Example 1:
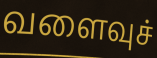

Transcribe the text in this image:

வளைவுச்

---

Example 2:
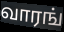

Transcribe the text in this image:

வாரங்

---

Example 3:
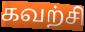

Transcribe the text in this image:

கவற்சி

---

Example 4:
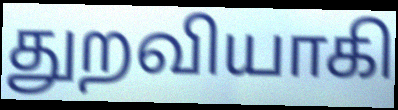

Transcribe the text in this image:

துறவியாகி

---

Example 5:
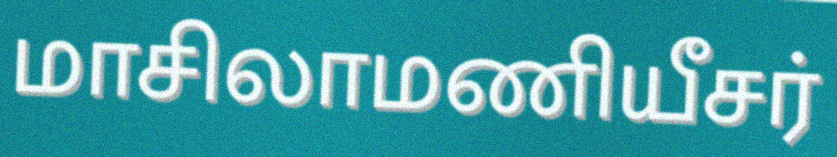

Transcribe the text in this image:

மாசிலாமணியீசர்